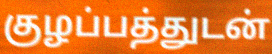
குழப்பத்துடன்